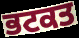
ਭਟਕਤ